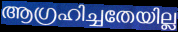
ആഗ്രഹിച്ചതേയില്ല